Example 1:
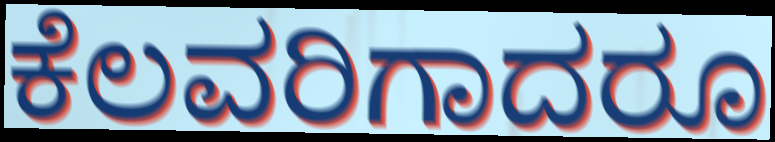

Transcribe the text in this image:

ಕೆಲವರಿಗಾದರೂ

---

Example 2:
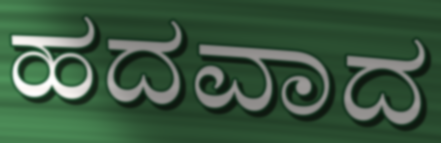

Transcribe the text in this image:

ಹದವಾದ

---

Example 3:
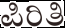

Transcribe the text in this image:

ಪಿರಿತಿ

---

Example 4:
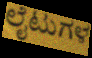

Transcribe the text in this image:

ಲೈಟುಗಳ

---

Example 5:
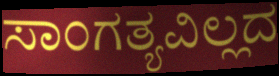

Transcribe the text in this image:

ಸಾಂಗತ್ಯವಿಲ್ಲದ